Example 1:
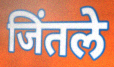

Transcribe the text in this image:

जिंतले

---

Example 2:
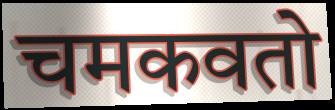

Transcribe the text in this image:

चमकवतो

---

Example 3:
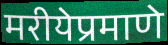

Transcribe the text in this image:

मरीयेप्रमाणे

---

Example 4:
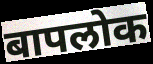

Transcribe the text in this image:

बापलोक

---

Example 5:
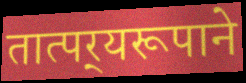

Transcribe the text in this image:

तात्पर्यरूपाने